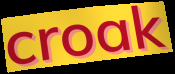
croak